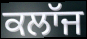
ਕਲਾੱਜ